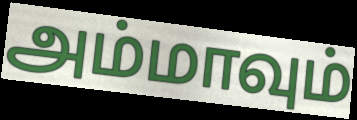
அம்மாவும்